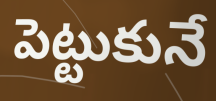
పెట్టుకునే